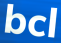
bcl